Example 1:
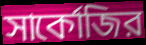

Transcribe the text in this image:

সার্কোজির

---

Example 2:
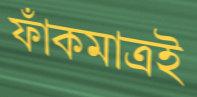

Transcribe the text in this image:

ফাঁকমাত্রই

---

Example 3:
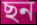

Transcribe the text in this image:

ছন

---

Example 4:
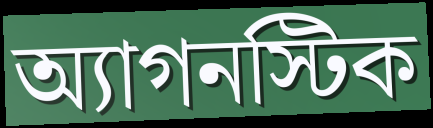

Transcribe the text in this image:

অ্যাগনস্টিক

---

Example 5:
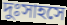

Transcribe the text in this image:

দুঃসাহসে